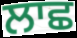
ਲਾਛ